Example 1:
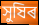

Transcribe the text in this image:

সুষিৰ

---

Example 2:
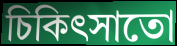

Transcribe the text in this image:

চিকিৎসাতো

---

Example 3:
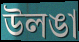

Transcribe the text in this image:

উলঙা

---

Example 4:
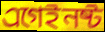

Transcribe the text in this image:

এগেইনষ্ট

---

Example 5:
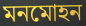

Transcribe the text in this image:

মনমোহন